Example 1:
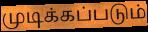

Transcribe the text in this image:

முடிக்கப்படும்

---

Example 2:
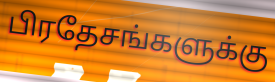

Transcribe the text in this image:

பிரதேசங்களுக்கு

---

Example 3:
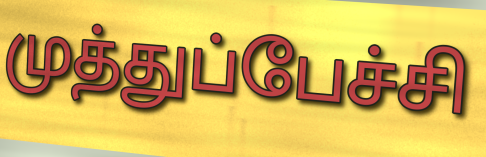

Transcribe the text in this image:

முத்துப்பேச்சி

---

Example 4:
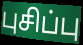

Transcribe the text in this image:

புசிப்பு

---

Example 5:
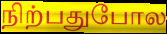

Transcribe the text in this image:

நிற்பதுபோல